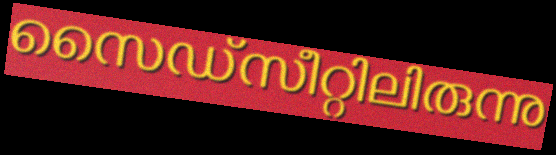
സൈഡ്സീറ്റിലിരുന്നു